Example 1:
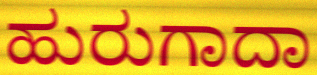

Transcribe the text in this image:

ಹುರುಗಾದಾ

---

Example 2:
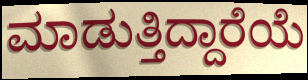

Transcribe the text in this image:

ಮಾಡುತ್ತಿದ್ದಾರೆಯೆ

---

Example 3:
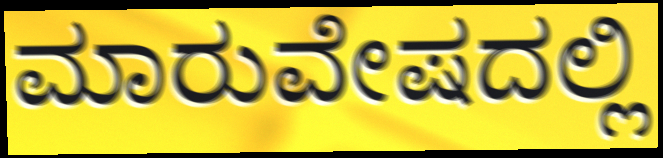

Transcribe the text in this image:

ಮಾರುವೇಷದಲ್ಲಿ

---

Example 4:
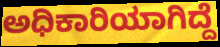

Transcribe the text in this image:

ಅಧಿಕಾರಿಯಾಗಿದ್ದೆ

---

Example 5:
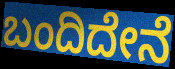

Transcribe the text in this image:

ಬಂದಿದೇನೆ